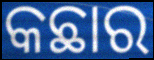
କଛାର